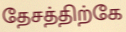
தேசத்திற்கே